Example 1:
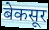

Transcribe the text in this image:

बेकसूर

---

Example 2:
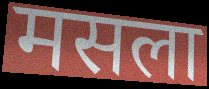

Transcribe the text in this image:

मसला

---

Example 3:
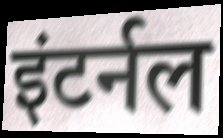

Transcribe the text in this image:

इंटर्नल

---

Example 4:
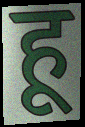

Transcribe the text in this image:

हू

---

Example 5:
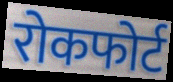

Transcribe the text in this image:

रोकफोर्ट